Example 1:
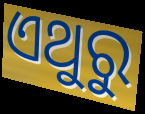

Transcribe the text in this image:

ଏଥୁରୁ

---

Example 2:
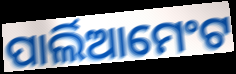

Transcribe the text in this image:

ପାର୍ଲିଆମେଂଟ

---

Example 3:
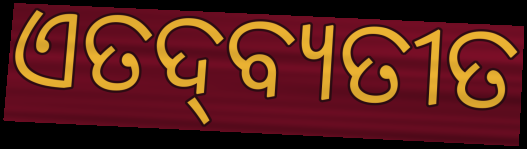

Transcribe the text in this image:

ଏତଦ୍‍ବ୍ୟତୀତ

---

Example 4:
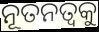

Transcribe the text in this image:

ନୂତନତ୍ବକୁ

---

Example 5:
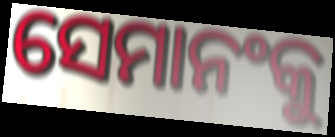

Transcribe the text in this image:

ସେମାନଂକୁ